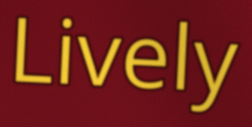
Lively